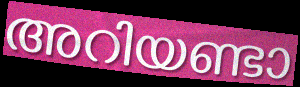
അറിയണ്ടാ